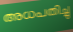
അധപതിച്ചു